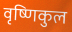
वृष्णिकुल